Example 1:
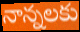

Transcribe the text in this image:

నాన్నలకు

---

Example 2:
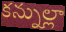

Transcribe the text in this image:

కన్నుల్లా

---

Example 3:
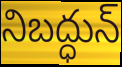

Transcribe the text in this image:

నిబద్ధున్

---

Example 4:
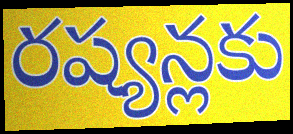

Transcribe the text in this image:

రష్యన్లకు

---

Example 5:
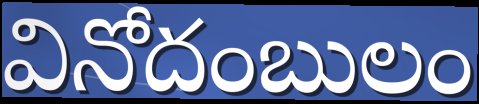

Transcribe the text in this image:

వినోదంబులం